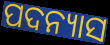
ପଦନ୍ୟାସ